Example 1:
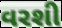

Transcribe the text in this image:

વરશી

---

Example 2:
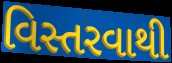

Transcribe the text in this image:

વિસ્તરવાથી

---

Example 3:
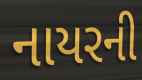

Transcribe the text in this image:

નાયરની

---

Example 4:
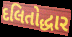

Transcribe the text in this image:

દલિતોદ્ધાર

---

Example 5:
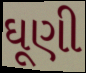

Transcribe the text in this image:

ઘૂણી